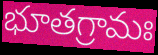
భూతగ్రామః